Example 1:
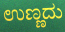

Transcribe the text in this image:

ಉಣ್ಣದು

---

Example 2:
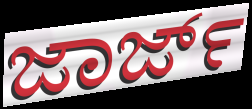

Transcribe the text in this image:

ಜಾರ್ಜ್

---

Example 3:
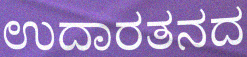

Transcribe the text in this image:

ಉದಾರತನದ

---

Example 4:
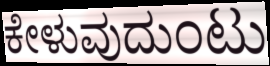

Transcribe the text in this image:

ಕೇಳುವುದುಂಟು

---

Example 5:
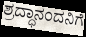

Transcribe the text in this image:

ಶ್ರದ್ಧಾನಂದನಿಗೆ